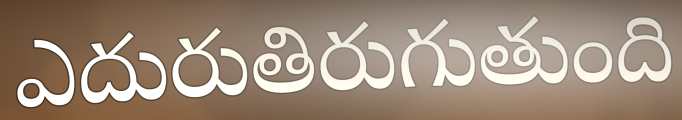
ఎదురుతిరుగుతుంది